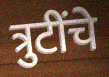
त्रुटींचे